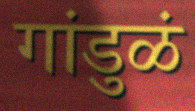
गांडुळं